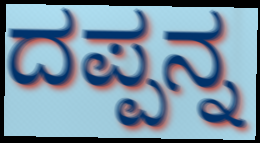
ದಪ್ಪನ್ನ